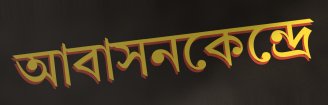
আবাসনকেন্দ্রে